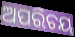
ଅପରିଚୟ